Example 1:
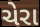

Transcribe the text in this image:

ચેરા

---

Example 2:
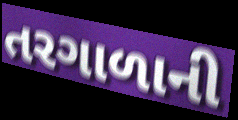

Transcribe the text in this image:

તરગાળાની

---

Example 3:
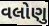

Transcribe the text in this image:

વલોણુ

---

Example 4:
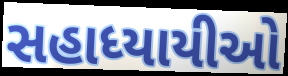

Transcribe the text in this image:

સહાધ્યાયીઓ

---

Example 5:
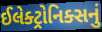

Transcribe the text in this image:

ઈલેક્ટ્રોનિક્સનું